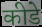
कीडे